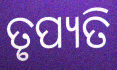
ତୃପ୍ୟତି